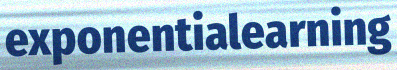
exponentialearning